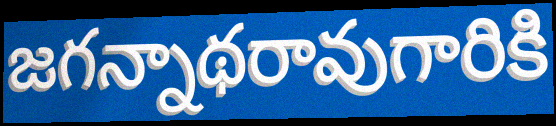
జగన్నాథరావుగారికి